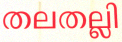
തലതല്ലി